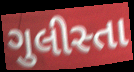
ગુલીસ્તા